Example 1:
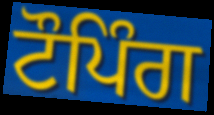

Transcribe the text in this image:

ਟੌਪਿੰਗ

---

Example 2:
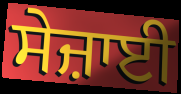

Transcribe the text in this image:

ਸੇਜ਼ਾਈ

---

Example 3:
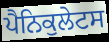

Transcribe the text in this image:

ਪੈਨਿਕੁਲੇਟਸ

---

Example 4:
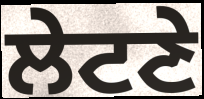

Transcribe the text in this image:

ਲੇਟਣੇ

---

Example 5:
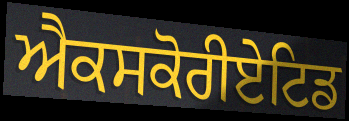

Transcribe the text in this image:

ਐਕਸਕੋਰੀਏਟਿਡ